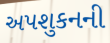
અપશુકનની